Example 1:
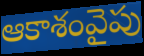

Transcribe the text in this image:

ఆకాశంవైపు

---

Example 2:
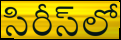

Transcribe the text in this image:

సిరీస్‌లో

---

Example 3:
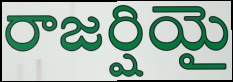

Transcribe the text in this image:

రాజర్షియై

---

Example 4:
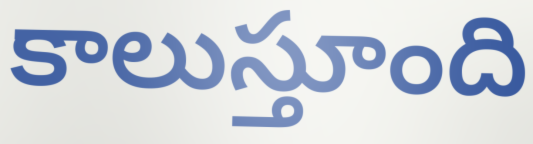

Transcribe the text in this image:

కాలుస్తూంది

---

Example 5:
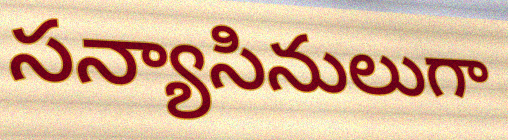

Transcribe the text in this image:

సన్యాసినులుగా